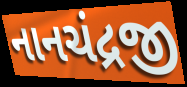
નાનચંદ્રજી